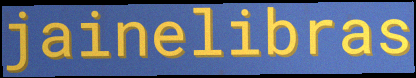
jainelibras